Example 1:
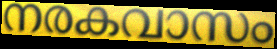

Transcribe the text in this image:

നരകവാസം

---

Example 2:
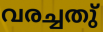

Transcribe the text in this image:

വരച്ചതു്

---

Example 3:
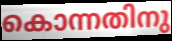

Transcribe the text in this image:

കൊന്നതിനു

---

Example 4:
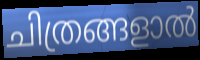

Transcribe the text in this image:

ചിത്രങ്ങളാൽ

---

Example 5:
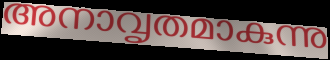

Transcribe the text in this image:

അനാവൃതമാകുന്നു